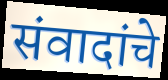
संवादांचे